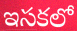
ఇసకలో